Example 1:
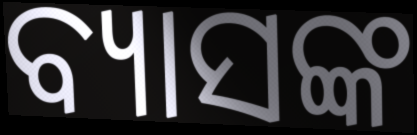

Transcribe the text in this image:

ବ୍ୟାସଙ୍କ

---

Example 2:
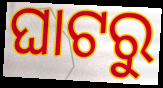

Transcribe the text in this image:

ଘାଟରୁ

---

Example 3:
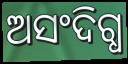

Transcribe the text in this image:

ଅସଂଦିଗ୍ଧ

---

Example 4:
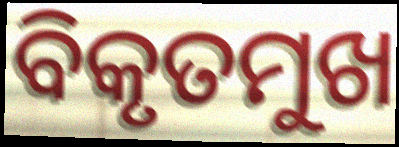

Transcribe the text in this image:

ବିକୃତମୁଖ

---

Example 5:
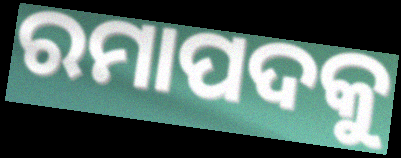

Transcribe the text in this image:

ରମାପଦକୁ